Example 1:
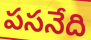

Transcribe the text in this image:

పసనేది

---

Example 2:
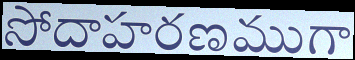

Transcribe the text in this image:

సోదాహరణముగా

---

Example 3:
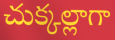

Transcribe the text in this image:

చుక్కల్లాగా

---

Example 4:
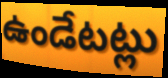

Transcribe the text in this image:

ఉండేటట్లు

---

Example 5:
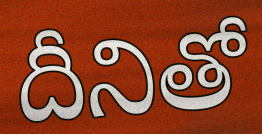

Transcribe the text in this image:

దీనితో